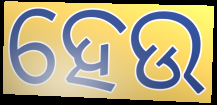
ହେଉ